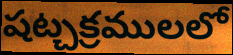
షట్చక్రములలో